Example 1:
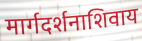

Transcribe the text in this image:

मार्गदर्शनाशिवाय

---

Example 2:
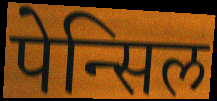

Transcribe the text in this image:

पेन्सिल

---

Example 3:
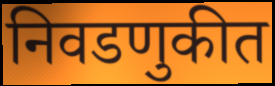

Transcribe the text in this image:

निवडणुकीत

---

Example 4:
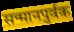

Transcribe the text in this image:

सन्मानपुर्वक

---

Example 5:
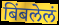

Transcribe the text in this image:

बिंबलेलं